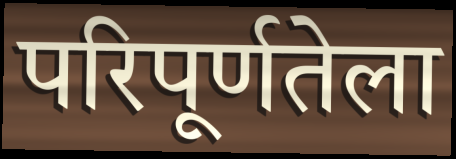
परिपूर्णतेला